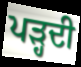
ਪੜ੍ਹਦੀ